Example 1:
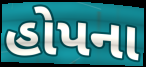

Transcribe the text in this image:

હોપના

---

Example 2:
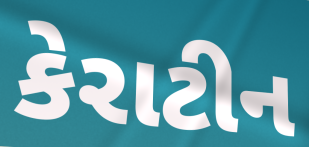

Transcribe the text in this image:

કેરાટીન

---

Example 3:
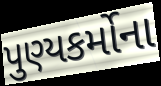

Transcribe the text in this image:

પુણ્યકર્મોના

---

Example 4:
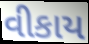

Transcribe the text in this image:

વીકાય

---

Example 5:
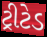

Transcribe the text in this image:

ટ્રીટેડ